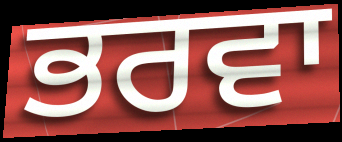
ਭਰਵਾ